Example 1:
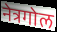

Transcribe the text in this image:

नेत्रगोल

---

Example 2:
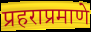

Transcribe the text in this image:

प्रहराप्रमाणे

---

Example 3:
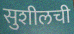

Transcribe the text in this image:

सुशीलची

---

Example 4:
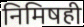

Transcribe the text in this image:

निमिषही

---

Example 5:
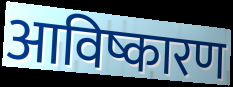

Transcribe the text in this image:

आविष्कारण